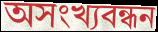
অসংখ্যবন্ধন